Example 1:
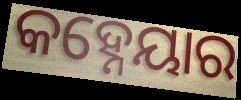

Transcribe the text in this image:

କହ୍ନେୟାର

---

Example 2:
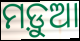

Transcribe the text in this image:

ମଡ଼ୁଆ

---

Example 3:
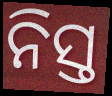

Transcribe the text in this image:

ନିସ୍ତ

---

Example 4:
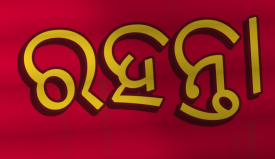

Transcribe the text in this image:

ରହନ୍ତା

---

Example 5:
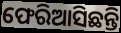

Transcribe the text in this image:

ଫେରିଆସିଛନ୍ତି